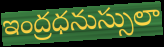
ఇంద్రధనుస్సులా